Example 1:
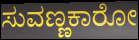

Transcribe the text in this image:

ಸುವಣ್ಣಕಾರೋ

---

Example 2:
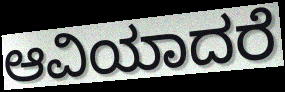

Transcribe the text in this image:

ಆವಿಯಾದರೆ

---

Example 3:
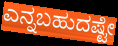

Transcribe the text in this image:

ಎನ್ನಬಹುದಷ್ಟೇ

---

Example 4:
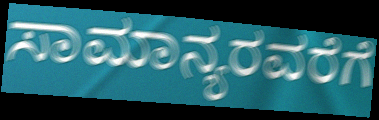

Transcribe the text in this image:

ಸಾಮಾನ್ಯರವರೆಗೆ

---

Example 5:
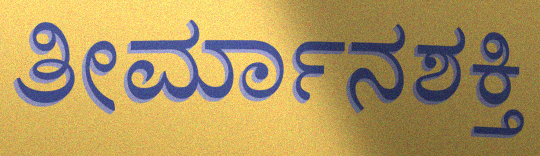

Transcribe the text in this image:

ತೀರ್ಮಾನಶಕ್ತಿ